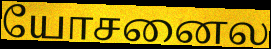
யோசனைல